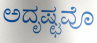
ಅದೃಷ್ಟವೊ